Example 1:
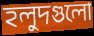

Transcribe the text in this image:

হলুদগুলো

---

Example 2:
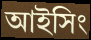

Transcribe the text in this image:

আইসিং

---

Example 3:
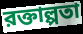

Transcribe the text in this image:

রক্তাল্পতা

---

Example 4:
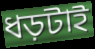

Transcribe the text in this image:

ধড়টাই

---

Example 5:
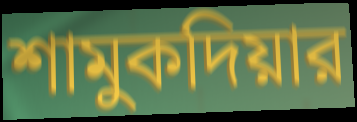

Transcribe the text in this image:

শামুকদিয়ার